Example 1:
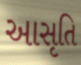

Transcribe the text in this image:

આસૃતિ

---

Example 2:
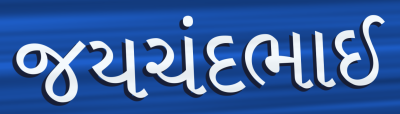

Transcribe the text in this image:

જયચંદભાઈ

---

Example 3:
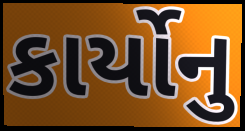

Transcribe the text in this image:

કાર્યોનુ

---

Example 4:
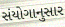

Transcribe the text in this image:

સંયોગાનુસાર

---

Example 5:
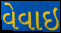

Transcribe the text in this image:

વેવાઇ